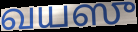
வயஸு